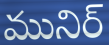
మునిర్